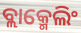
ବ୍ଲାକ୍ମେଲିଂ